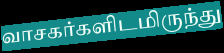
வாசகர்களிடமிருந்து